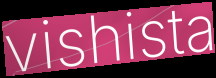
vishista